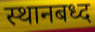
स्थानबध्द